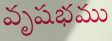
వృషభము